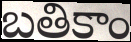
బతికాం